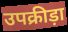
उपक्रीड़ा